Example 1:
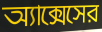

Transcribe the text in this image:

অ্যাক্সেসের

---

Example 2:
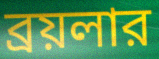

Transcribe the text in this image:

ব্রয়লার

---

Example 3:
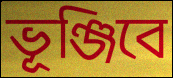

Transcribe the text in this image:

ভূঞ্জিবে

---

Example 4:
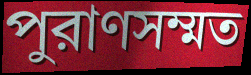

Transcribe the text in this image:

পুরাণসম্মত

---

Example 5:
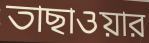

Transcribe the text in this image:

তাছাওয়ার